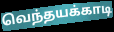
வெந்தயக்காடி